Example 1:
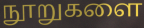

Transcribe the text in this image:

நூறுகளை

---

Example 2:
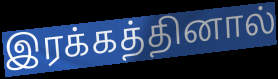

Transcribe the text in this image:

இரக்கத்தினால்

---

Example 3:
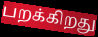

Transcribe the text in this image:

பறக்கிறது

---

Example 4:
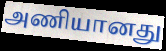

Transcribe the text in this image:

அணியானது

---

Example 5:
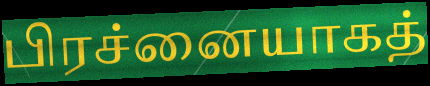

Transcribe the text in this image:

பிரச்னையாகத்